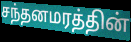
சந்தனமரத்தின்